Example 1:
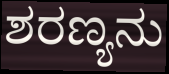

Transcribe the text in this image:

ಶರಣ್ಯನು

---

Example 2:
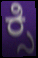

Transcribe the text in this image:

ಕ್ಸಿ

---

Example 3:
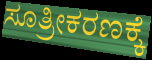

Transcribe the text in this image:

ಸೂತ್ರೀಕರಣಕ್ಕೆ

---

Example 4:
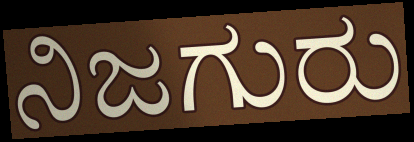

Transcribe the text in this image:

ನಿಜಗುರು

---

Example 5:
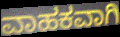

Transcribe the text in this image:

ವಾಹಕವಾಗಿ